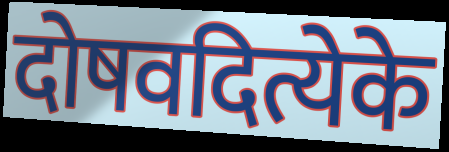
दोषवदित्येके